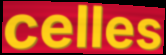
celles